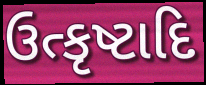
ઉત્કૃષ્ટાદિ